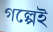
গল্পেই